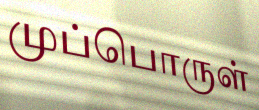
முப்பொருள்